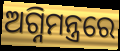
ଅଗ୍ନିମନ୍ତ୍ରରେ